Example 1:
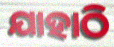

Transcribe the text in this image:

ଯାହାଠି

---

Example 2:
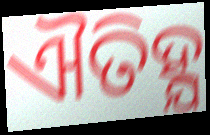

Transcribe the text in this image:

ଐତିହ୍ଯ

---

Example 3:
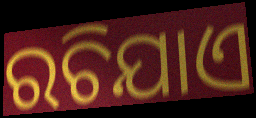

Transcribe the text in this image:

ରଚିଯାଏ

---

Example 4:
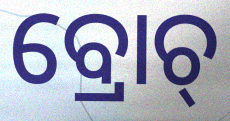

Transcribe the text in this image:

ବ୍ରୋଚ୍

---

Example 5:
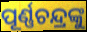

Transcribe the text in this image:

ପୂର୍ଣ୍ଣଚନ୍ଦ୍ରଙ୍କୁ